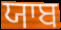
ਯਾਬ